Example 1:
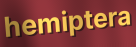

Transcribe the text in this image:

hemiptera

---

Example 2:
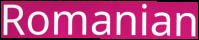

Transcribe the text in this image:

Romanian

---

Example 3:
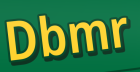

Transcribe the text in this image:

Dbmr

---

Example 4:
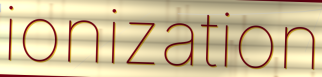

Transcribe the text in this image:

ionization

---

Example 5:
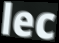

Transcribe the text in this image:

lec